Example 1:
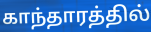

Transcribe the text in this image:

காந்தாரத்தில்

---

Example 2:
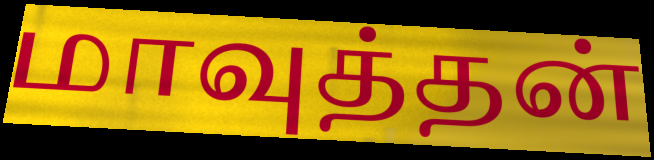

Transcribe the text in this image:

மாவுத்தன்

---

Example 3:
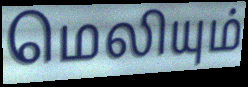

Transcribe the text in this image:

மெலியும்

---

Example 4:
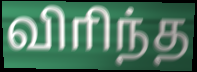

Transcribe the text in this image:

விரிந்த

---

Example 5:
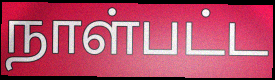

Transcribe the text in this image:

நாள்பட்ட